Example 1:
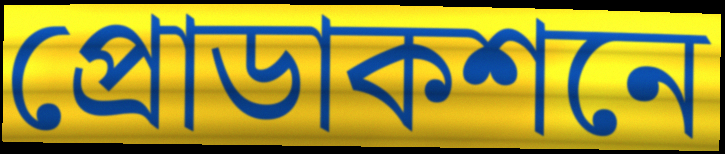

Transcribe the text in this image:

প্রোডাকশনে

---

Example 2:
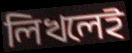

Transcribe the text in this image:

লিখলেই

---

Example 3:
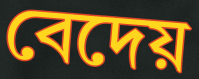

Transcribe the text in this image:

বেদেয়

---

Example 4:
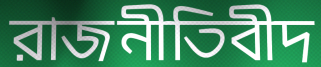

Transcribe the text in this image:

রাজনীতিবীদ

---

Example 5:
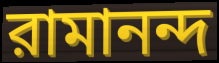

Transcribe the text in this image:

রামানন্দ